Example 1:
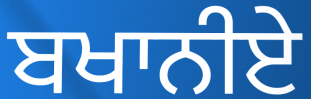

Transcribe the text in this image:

ਬਖਾਨੀਏ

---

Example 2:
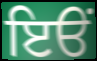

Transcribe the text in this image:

ਇੳਂ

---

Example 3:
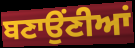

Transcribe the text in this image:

ਬਣਾਉਂਣੀਆਂ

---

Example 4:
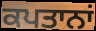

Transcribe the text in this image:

ਕਪਤਾਨਾਂ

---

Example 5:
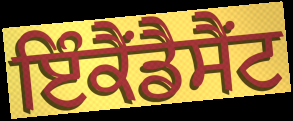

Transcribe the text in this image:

ਇੰਕੈਂਡੈਸੈਂਟ